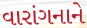
વારાંગનાને